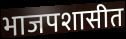
भाजपशासीत